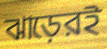
ঝাড়েরই